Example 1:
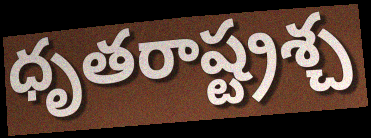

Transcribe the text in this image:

ధృతరాష్ట్రశ్చ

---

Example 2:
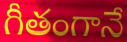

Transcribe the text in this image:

గీతంగానే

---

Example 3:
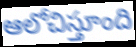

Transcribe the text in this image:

ఆలోచిస్తూంది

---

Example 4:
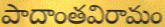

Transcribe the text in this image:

పాదాంతవిరామం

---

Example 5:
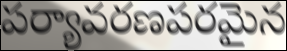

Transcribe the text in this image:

పర్యావరణపరమైన